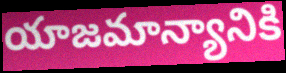
యాజమాన్యానికి